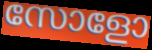
സോളോ